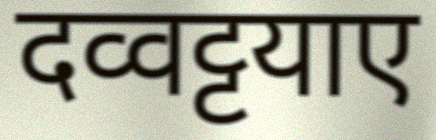
दव्वट्टयाए